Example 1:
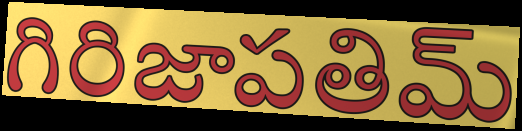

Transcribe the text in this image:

గిరిజాపతిమ్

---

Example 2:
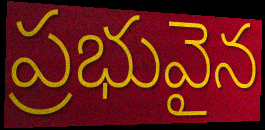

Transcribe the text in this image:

ప్రభువైన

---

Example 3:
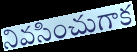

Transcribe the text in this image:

నివసించుగాక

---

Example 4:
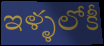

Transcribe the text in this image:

ఇళ్ళలోకీ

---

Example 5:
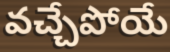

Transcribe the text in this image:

వచ్చేపోయే